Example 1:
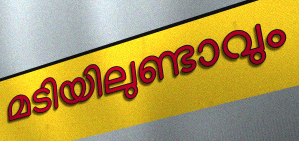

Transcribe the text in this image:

മടിയിലുണ്ടാവും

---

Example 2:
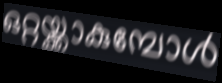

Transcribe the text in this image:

ഒറ്റയ്ക്കാകുമ്പോൾ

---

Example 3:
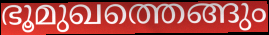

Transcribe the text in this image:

ഭൂമുഖത്തെങ്ങും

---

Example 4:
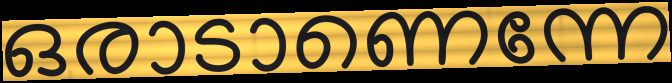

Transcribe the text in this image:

ഒരാടാണെന്നേ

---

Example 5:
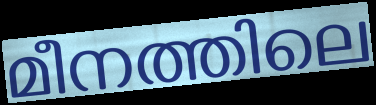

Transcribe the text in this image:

മീനത്തിലെ